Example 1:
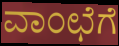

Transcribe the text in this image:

ವಾಂಛೆಗೆ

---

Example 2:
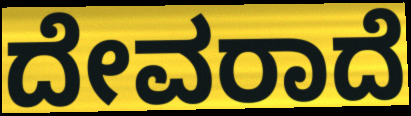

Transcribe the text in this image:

ದೇವರಾದೆ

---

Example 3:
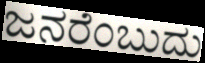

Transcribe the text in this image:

ಜನರೆಂಬುದು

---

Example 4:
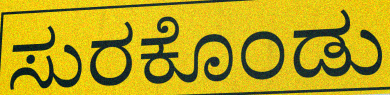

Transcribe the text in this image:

ಸುರಕೊಂಡು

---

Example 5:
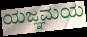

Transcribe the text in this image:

ಯಜ್ಞಮಯ